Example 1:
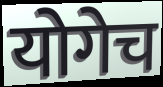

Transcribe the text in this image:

योगेच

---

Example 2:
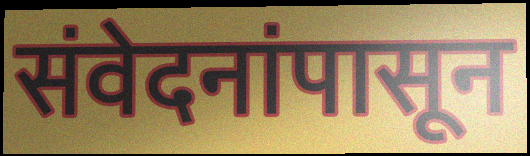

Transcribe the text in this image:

संवेदनांपासून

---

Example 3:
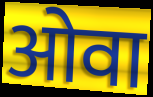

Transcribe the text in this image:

ओवा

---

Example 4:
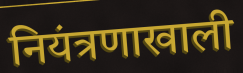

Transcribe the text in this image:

नियंत्रणाखाली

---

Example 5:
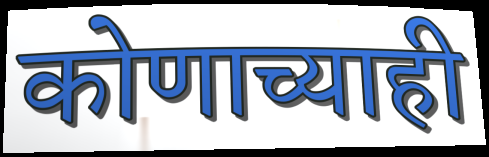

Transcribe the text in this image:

कोणाच्याही